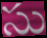
సు